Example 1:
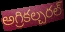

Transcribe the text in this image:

అగ్రికల్చరల్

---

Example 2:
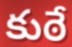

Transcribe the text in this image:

కుఠే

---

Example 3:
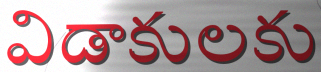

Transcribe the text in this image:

విడాకులకు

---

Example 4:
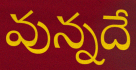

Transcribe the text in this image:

వున్నదే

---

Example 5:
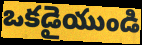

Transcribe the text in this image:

ఒకడైయుండి